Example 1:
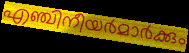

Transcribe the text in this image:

എഞ്ചിനീയർമാർക്കും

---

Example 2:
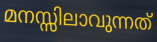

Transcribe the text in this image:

മനസ്സിലാവുന്നത്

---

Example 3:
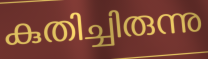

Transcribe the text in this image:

കുതിച്ചിരുന്നു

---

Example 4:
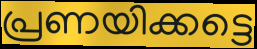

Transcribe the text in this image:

പ്രണയിക്കട്ടെ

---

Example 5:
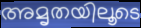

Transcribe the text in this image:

അമൃതയിലൂടെ